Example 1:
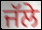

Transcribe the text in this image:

ਜੱਲੇ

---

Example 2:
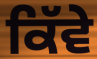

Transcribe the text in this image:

ਕਿੱਵੇ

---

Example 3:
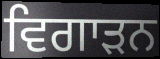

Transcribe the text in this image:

ਵਿਗਾੜਨ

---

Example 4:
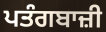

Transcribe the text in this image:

ਪਤੰਗਬਾਜ਼ੀ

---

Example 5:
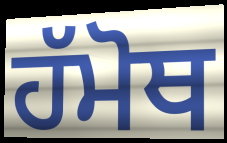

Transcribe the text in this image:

ਹੱਮੋਥ